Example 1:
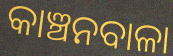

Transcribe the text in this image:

କାଞ୍ଚନବାଳା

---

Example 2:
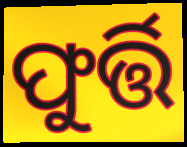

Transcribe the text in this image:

ଫୁର୍ତ୍ତି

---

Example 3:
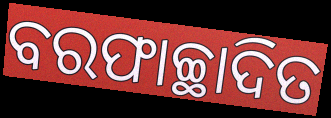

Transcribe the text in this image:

ବରଫାଚ୍ଛାଦିତ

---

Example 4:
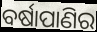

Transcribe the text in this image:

ବର୍ଷାପାଣିର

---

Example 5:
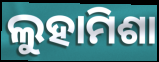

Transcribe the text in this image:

ଲୁହାମିଶା